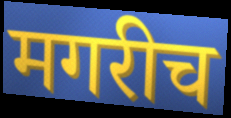
मगरीच